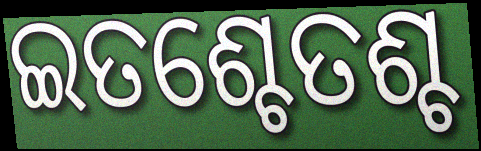
ଇତଶ୍ଚେତଶ୍ଚ